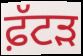
ਫ਼ੱਟੜ